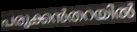
പരുക്കൻതറയിൽ